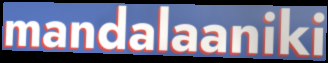
mandalaaniki